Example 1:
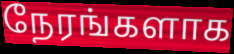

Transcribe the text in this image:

நேரங்களாக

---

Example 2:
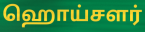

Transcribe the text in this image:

ஹொய்சளர்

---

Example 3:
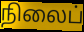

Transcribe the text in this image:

நிலைப்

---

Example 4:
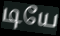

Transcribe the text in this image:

டியே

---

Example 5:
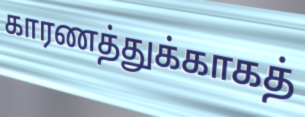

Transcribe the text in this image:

காரணத்துக்காகத்